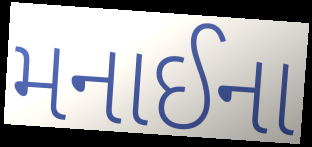
મનાઈના